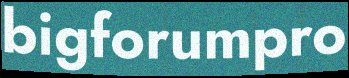
bigforumpro